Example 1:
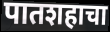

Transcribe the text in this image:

पातशहाचा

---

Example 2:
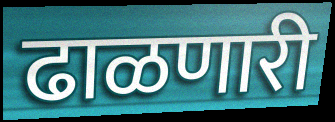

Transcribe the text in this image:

ढाळणारी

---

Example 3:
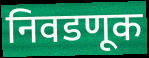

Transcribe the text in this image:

निवडणूक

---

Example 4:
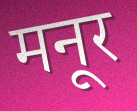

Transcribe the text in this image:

मनूर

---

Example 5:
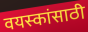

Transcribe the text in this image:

वयस्कांसाठी